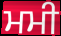
ਮਮੀ